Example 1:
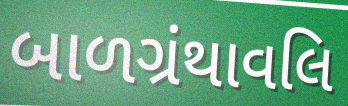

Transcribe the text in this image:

બાળગ્રંથાવલિ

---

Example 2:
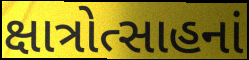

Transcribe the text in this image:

ક્ષાત્રોત્સાહનાં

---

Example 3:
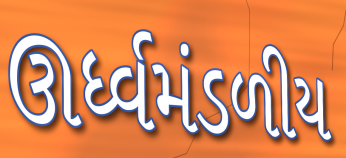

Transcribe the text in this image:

ઊર્ધ્વમંડળીય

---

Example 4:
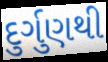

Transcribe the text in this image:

દુર્ગુણથી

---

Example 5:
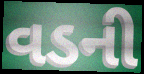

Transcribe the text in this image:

વડની